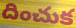
దించుక